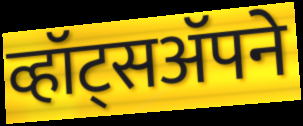
व्हॉट्सॲपने